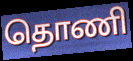
தொணி